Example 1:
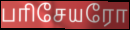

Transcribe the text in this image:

பரிசேயரோ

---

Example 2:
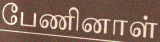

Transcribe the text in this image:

பேணினாள்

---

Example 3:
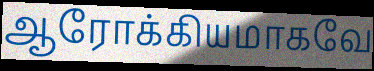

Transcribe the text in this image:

ஆரோக்கியமாகவே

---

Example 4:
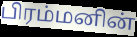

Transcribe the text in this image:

பிரம்மனின்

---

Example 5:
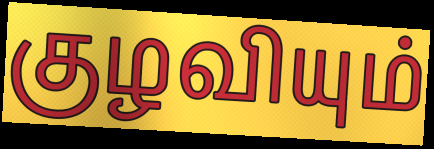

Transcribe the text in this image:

குழவியும்